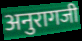
अनुरागजी